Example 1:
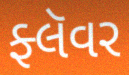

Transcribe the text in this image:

ફ્લૅવર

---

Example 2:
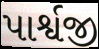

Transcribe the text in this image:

પાર્શ્વજી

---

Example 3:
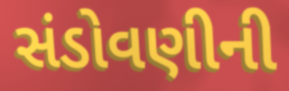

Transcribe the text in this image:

સંડોવણીની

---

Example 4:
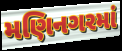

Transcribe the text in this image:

મણિનગરમાં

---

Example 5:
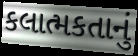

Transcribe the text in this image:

કલાત્મકતાનું